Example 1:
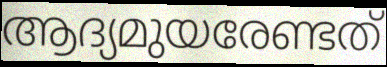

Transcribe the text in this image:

ആദ്യമുയരേണ്ടത്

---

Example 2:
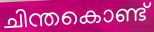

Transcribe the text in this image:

ചിന്തകൊണ്ട്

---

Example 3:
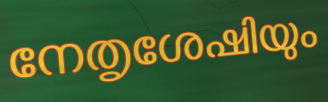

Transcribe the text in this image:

നേതൃശേഷിയും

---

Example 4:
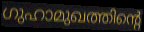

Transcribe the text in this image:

ഗുഹാമുഖത്തിന്റെ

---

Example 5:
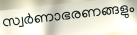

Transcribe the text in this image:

സ്വർണാഭരണങ്ങളും